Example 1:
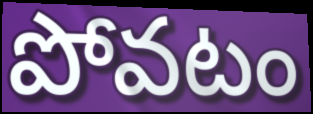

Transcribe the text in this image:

పోవటం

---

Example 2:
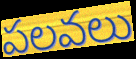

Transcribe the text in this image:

పలవలు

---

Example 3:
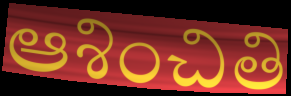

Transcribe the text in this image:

ఆశించితి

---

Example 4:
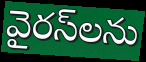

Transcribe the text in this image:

వైరస్‌లను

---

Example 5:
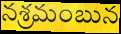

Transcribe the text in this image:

నశ్రమంబున